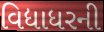
વિદ્યાધરની